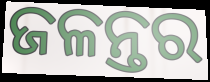
ଜଳନ୍ତର